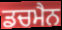
ਡਚਮੈਨ